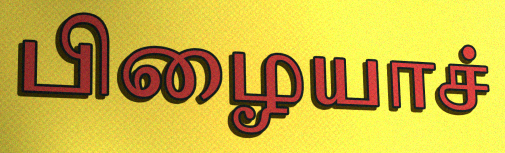
பிழையாச்